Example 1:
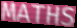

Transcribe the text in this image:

MATHS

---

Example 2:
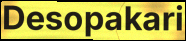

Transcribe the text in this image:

Desopakari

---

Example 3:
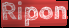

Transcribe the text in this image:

Ripon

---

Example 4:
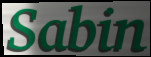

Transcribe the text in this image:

Sabin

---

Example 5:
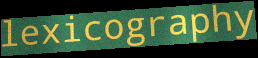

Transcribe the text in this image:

lexicography